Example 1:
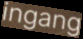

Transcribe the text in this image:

ingang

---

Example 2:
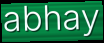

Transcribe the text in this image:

abhay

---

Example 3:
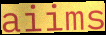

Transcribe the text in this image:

aiims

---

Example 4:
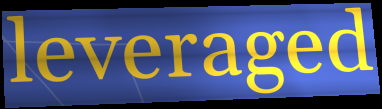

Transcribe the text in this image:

leveraged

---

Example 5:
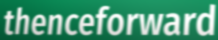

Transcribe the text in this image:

thenceforward